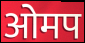
ओमप